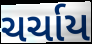
ચર્ચાય